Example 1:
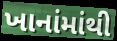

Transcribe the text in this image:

ખાનાંમાંથી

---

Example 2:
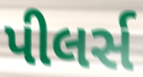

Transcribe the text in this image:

પીલર્સ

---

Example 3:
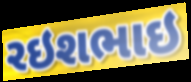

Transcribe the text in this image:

રઇશભાઇ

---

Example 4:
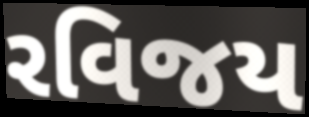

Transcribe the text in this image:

રવિજય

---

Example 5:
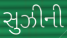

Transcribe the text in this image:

સુઝીની